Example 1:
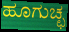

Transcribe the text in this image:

ಹೂಗುಚ್ಛ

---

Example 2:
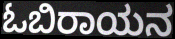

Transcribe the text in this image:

ಓಬಿರಾಯನ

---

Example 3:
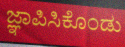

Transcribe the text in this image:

ಜ್ಞಾಪಿಸಿಕೊಂಡು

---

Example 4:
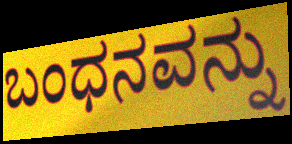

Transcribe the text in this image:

ಬಂಧನವನ್ನು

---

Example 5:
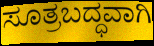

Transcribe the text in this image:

ಸೂತ್ರಬದ್ಧವಾಗಿ